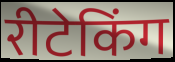
रीटेकिंग